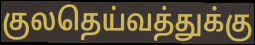
குலதெய்வத்துக்கு